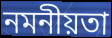
নমনীয়তা